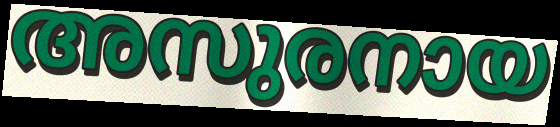
അസുരനായ